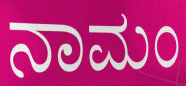
ನಾಮಂ